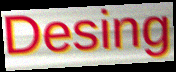
Desing